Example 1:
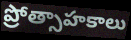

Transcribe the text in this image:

ప్రోత్సాహకాలు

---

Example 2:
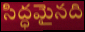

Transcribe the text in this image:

సిద్ధమైనది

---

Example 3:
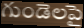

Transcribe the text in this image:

గుండెలపై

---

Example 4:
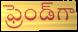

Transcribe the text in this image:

ఫ్రెండ్‌గా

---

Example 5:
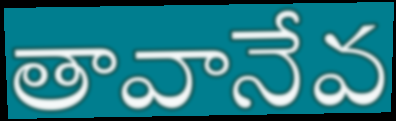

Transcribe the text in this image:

తావానేవ